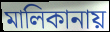
মালিকানায়